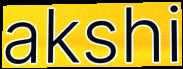
akshi